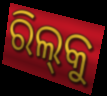
ରିଲ୍‌କୁ